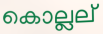
കൊല്ലല്